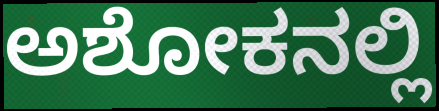
ಅಶೋಕನಲ್ಲಿ